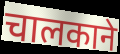
चालकाने